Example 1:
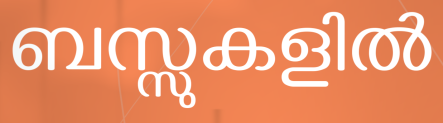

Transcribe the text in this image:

ബസ്സുകളിൽ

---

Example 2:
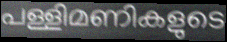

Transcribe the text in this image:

പള്ളിമണികളുടെ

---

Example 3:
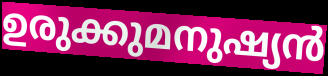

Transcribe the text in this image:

ഉരുക്കുമനുഷ്യൻ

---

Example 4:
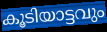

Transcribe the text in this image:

കൂടിയാട്ടവും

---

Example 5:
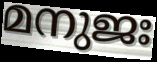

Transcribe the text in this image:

മനുജഃ